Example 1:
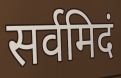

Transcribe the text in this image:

सर्वमिदं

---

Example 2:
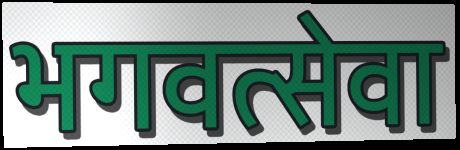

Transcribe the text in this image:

भगवत्सेवा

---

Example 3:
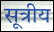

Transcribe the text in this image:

सूत्रीय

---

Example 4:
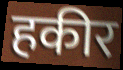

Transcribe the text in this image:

हकीर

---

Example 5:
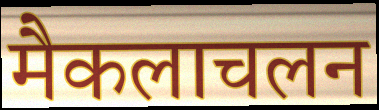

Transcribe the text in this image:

मैकलाचलन